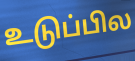
உடுப்பில